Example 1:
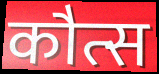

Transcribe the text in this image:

कौत्स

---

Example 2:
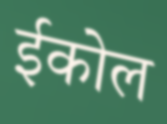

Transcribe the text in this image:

ईकोल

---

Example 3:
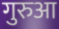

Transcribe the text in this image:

गुरुआ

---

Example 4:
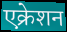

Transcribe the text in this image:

एक्रेशन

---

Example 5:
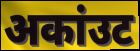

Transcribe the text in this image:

अकांउट